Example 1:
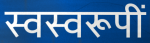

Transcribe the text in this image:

स्वस्वरूपीं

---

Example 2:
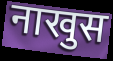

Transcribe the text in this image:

नाखुस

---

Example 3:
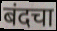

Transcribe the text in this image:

बंदचा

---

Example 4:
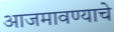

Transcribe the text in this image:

आजमावण्याचे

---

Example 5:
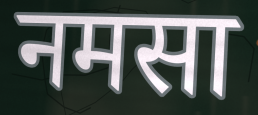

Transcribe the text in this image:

नमसा